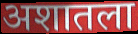
अशातला